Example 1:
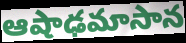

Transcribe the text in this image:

ఆషాఢమాసాన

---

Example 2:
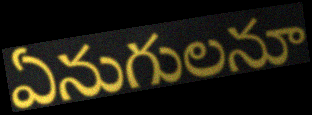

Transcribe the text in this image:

ఏనుగులనూ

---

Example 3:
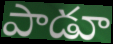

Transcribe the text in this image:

పాడూ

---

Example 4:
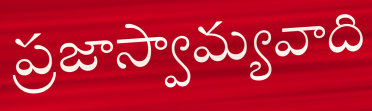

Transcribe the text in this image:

ప్రజాస్వామ్యవాది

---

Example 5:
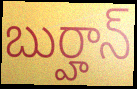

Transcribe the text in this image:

బుర్హాన్